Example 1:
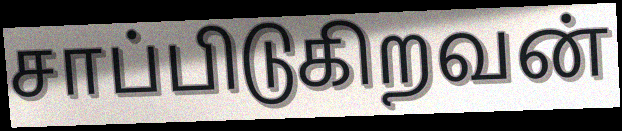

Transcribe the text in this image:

சாப்பிடுகிறவன்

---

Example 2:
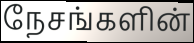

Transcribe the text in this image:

நேசங்களின்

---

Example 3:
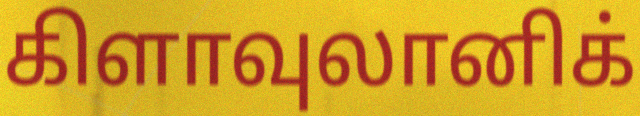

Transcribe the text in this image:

கிளாவுலானிக்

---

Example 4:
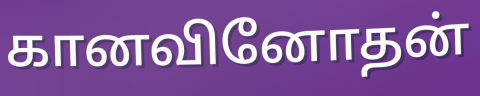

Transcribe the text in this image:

கானவினோதன்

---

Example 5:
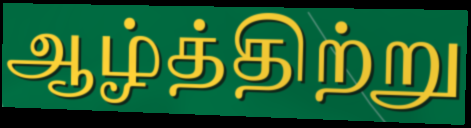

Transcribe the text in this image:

ஆழ்த்திற்று